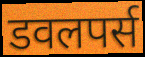
डवलपर्स